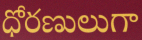
ధోరణులుగా